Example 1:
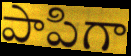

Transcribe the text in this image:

పాపిగా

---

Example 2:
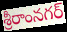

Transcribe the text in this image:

శ్రీరాంనగర్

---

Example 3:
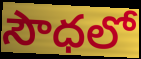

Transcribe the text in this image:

సౌధలో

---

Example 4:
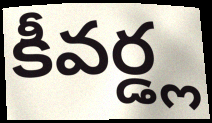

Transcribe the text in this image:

కీవర్డ్ల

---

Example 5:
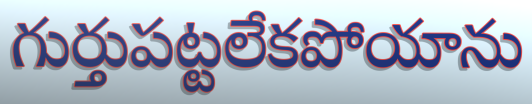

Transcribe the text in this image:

గుర్తుపట్టలేకపోయాను